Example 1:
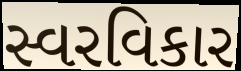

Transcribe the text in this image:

સ્વરવિકાર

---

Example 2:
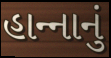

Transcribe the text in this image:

હાન્‍નાનું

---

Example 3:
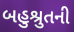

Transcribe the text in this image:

બહુશ્રુતની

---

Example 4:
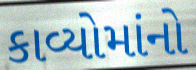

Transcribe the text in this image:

કાવ્યોમાંનો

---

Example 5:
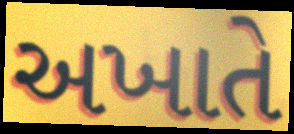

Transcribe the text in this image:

અખાતે